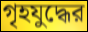
গৃহযুদ্ধের